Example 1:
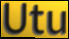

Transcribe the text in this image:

Utu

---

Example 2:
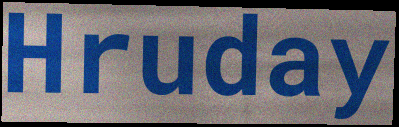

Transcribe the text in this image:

Hruday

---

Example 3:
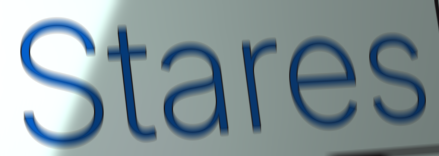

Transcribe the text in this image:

Stares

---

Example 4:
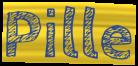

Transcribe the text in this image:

Pille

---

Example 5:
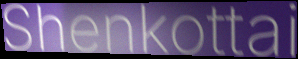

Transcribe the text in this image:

Shenkottai